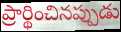
ప్రార్థించినప్పుడు